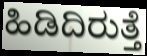
ಹಿಡಿದಿರುತ್ತೆ